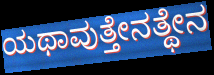
ಯಥಾವುತ್ತೇನತ್ಥೇನ